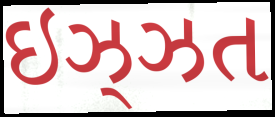
ઇઝ્ઝત